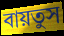
বায়তুস